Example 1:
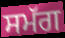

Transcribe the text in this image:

ਸਮੱਗ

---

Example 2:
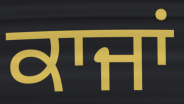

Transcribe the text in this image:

ਕਾਜਾਂ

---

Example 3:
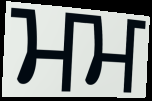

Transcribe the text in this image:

ਮਮ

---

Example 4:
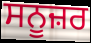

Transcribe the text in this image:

ਸਨੂਜ਼ਰ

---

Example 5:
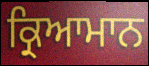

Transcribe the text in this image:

ਕ੍ਰਿਆਮਾਨ